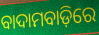
ବାଦାମବାଡ଼ିରେ